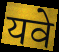
यवे